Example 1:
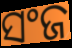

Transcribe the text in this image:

ସଂଜ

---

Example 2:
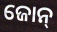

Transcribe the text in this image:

ଜୋନ୍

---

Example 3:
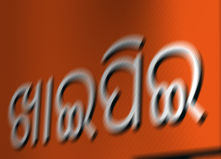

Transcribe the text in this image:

ଖାଇପିଇ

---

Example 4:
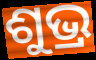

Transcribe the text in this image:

ଶୁଭ୍ର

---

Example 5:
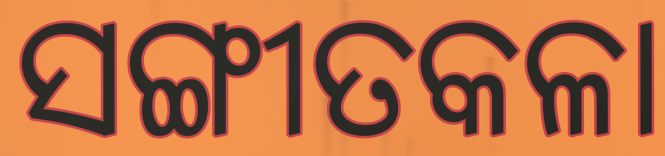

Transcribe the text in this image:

ସଙ୍ଗୀତକଳା